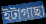
ইটাগাছা